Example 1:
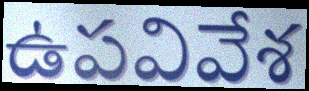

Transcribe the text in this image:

ఉపవివేశ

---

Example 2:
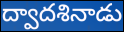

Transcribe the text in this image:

ద్వాదశినాడు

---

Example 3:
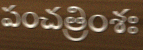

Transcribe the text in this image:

పంచత్రింశః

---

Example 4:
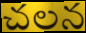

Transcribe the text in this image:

చలన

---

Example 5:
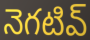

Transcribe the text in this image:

నెగటివ్